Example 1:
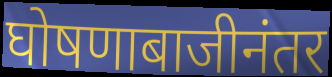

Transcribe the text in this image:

घोषणाबाजीनंतर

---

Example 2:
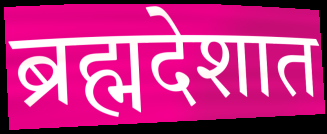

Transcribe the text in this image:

ब्रह्मदेशात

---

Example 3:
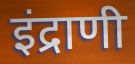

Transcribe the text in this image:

इंद्राणी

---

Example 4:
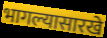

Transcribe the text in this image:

भागल्यासारखे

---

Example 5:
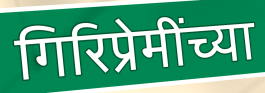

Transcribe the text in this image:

गिरिप्रेमींच्या